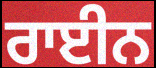
ਰਾਈਨ